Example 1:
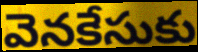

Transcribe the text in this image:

వెనకేసుకు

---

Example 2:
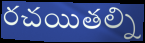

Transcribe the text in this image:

రచయితల్ని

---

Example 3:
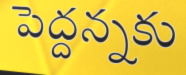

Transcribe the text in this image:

పెద్దన్నకు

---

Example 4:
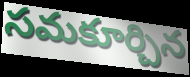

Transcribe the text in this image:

సమకూర్చిన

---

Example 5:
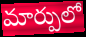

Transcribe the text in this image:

మార్పులో